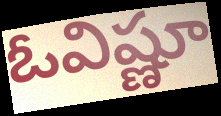
ఓవిష్ణూ